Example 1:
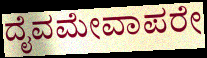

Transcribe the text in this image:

ದೈವಮೇವಾಪರೇ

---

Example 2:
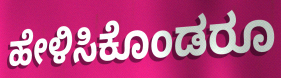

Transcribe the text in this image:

ಹೇಳಿಸಿಕೊಂಡರೂ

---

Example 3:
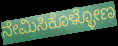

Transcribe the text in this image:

ನೇಮಿಸಿಕೊಳ್ಳೋಣ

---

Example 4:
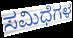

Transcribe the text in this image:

ಸಮಿಧೆಗಳ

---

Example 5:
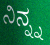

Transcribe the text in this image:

ನಿನ್ನ್ನ